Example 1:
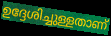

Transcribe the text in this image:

ഉദ്ദേശിച്ചുള്ളതാണ്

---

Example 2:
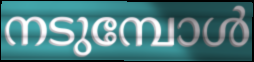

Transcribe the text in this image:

നടുമ്പോൾ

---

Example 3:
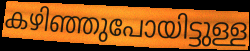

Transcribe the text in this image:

കഴിഞ്ഞുപോയിട്ടുള്ള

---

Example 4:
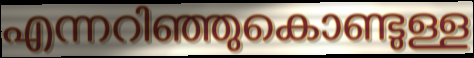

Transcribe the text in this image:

എന്നറിഞ്ഞുകൊണ്ടുള്ള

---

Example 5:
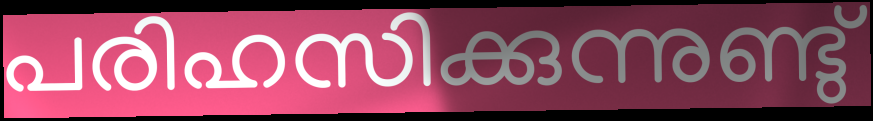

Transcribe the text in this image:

പരിഹസിക്കുന്നുണ്ടു്